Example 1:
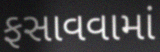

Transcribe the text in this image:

ફસાવવામાં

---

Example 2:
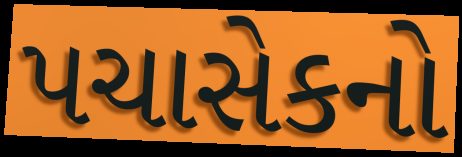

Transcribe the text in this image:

પચાસેકનો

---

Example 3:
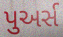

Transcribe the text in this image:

પુઅર્સ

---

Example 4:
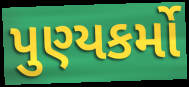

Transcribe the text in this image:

પુણ્યકર્મો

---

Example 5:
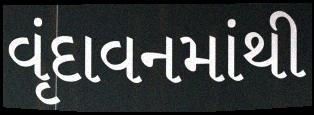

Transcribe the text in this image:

વૃંદાવનમાંથી